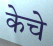
केचे